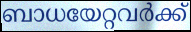
ബാധയേറ്റവർക്ക്